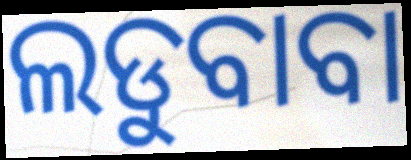
ଲଡୁବାବା